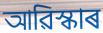
আৱিস্কাৰ